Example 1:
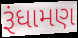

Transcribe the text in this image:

રૂંધામણ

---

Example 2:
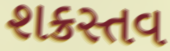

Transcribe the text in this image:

શક્રસ્તવ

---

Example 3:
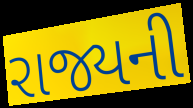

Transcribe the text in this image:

રાજ્યની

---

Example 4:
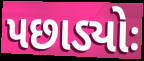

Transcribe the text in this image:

પછાડ્યોઃ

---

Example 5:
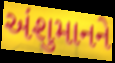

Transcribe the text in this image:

અંશુમાનને